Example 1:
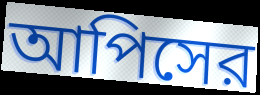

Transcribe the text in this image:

আপিসের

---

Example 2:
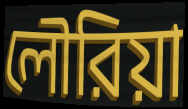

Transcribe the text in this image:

লৌরিয়া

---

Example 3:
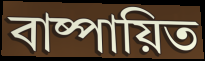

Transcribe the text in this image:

বাষ্পায়িত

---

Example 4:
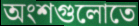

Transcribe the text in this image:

অংশগুলোতে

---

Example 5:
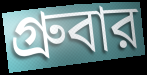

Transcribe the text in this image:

গ্রুবার